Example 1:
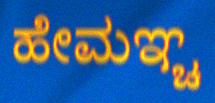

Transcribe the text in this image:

ಹೇಮಞ್ಚ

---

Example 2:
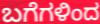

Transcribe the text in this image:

ಬಗೆಗಳಿಂದ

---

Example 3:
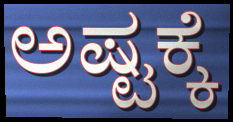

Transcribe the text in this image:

ಅಷ್ಟಕ್ಕೆ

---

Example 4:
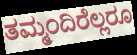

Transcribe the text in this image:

ತಮ್ಮಂದಿರೆಲ್ಲರೂ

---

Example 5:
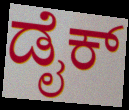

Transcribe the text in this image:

ಡೈಕ್